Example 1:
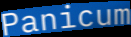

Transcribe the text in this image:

Panicum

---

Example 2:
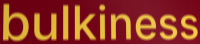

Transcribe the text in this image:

bulkiness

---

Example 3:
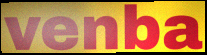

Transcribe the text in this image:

venba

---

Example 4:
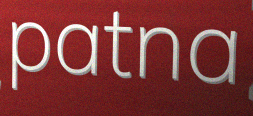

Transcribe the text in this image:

patna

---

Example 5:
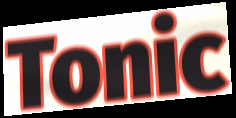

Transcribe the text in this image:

Tonic